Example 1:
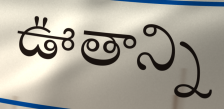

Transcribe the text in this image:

ఊతాన్ని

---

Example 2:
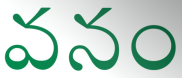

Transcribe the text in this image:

వనం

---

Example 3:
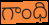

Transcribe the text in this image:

గాంధి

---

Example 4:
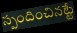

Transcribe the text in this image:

స్పందించినట్టే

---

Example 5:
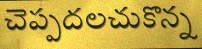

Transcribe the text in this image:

చెప్పదలచుకొన్న